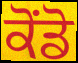
ਕੋਂਡੋ